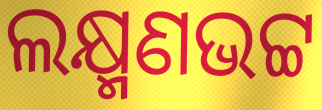
ଲକ୍ଷ୍ମଣଭଟ୍ଟ